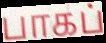
பாகப்